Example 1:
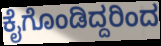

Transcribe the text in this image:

ಕೈಗೊಂಡಿದ್ದರಿಂದ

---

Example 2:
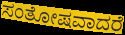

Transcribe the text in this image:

ಸಂತೋಷವಾದರೆ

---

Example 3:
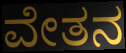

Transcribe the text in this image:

ವೇತನ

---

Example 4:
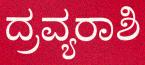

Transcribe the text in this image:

ದ್ರವ್ಯರಾಶಿ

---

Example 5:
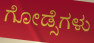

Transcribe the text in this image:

ಗೋಡ್ಸೆಗಳು